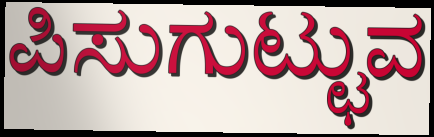
ಪಿಸುಗುಟ್ಟುವ